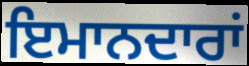
ਇਮਾਨਦਾਰਾਂ